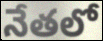
నేతలో